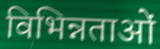
विभिन्नताओं